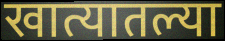
खात्यातल्या